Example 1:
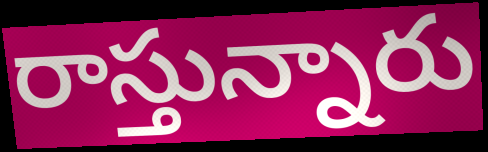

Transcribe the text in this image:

రాస్తున్నారు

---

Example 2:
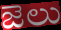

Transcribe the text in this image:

జెలు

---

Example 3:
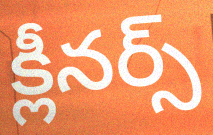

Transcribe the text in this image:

క్లీనర్స్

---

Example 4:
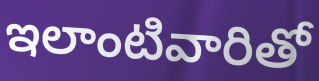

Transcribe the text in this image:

ఇలాంటివారితో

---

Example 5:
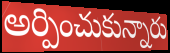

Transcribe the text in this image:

అర్పించుకున్నారు